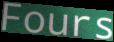
Fours